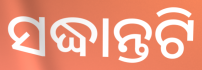
ସଦ୍ଧାନ୍ତଟି